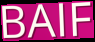
BAIF